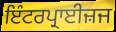
ਇੰਟਰਪ੍ਰਾਈਜ਼ਜ